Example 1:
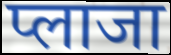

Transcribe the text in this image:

प्‍लाजा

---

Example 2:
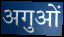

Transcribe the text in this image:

अगुओं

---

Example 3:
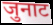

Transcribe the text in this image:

जुनाट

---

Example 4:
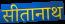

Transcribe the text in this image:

सीतानाथ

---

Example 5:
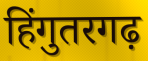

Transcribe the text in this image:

हिंगुतरगढ़